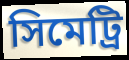
সিমেট্রি